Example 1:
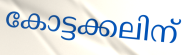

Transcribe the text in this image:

കോട്ടക്കലിന്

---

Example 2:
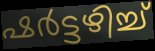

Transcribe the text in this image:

ഷർട്ടഴിച്ച്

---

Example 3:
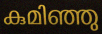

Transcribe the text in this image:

കുമിഞ്ഞു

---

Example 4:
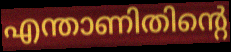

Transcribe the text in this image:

എന്താണിതിന്റെ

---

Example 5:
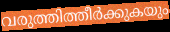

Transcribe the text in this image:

വരുത്തിത്തീർക്കുകയും